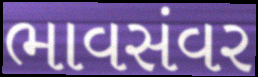
ભાવસંવર